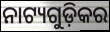
ନାଟ୍ୟଗୁଡ଼ିକର